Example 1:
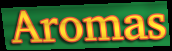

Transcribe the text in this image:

Aromas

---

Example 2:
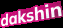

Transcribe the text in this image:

dakshin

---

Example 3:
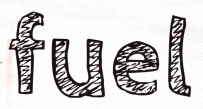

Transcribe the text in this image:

fuel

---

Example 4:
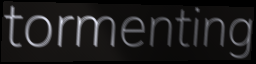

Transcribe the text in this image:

tormenting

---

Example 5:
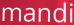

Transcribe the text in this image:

mandi